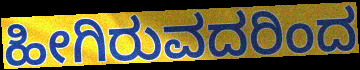
ಹೀಗಿರುವದರಿಂದ